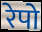
रेपो